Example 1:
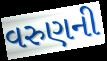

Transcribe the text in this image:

વરુણની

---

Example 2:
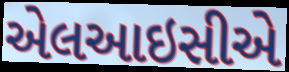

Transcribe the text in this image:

એલઆઇસીએ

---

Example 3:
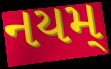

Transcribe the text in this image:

નયમ્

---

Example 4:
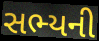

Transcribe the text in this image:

સભ્યની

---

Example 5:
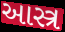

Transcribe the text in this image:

આસ્ત્ર